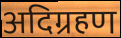
अदिग्रहण